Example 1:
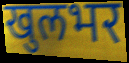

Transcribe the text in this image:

खुलभर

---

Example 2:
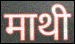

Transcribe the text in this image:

माथी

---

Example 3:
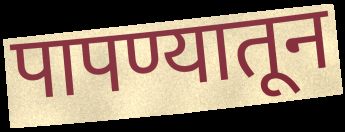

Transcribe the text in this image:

पापण्यातून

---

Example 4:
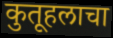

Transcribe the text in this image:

कुतूहलाचा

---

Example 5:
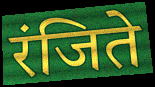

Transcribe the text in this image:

रंजिते